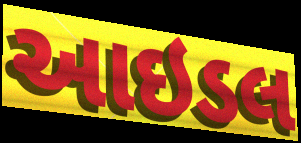
આઇડલ